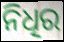
ନିଧିର